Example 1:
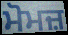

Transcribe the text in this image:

ਮੋਮਜ਼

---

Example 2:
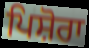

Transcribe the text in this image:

ਪਿਸ਼ੋਰਾ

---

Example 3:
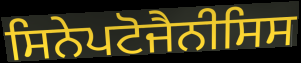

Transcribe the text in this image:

ਸਿਨੇਪਟੋਜੈਨੀਸਿਸ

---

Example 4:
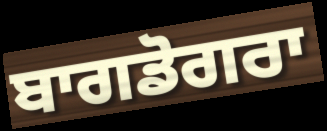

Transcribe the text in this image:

ਬਾਗਡੋਗਰਾ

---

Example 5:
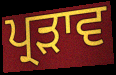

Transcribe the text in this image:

ਪ੍ਰੜਾਵ